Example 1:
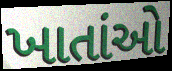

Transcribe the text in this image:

ખાતાંઓ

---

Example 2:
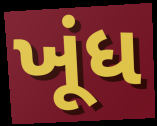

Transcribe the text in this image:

ખૂંધ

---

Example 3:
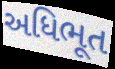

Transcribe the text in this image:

અધિભૂત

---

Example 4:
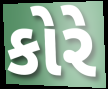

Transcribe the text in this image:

કોરે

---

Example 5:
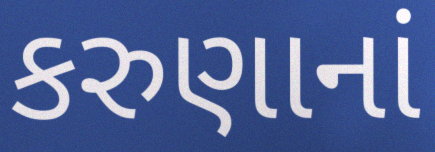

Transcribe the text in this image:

કરુણાનાં